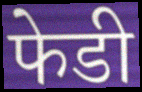
फेडी